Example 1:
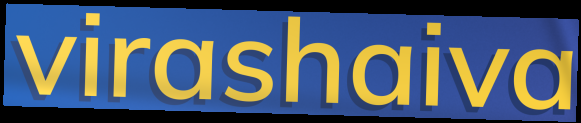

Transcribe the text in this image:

virashaiva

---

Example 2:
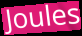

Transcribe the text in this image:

Joules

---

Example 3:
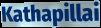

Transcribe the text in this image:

Kathapillai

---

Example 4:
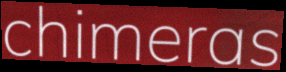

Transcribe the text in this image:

chimeras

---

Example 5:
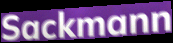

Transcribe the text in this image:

Sackmann